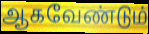
ஆகவேண்டும்